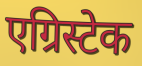
एग्रिस्टेक